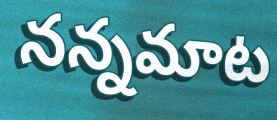
నన్నమాట